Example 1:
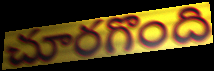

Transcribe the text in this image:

చూరగొంది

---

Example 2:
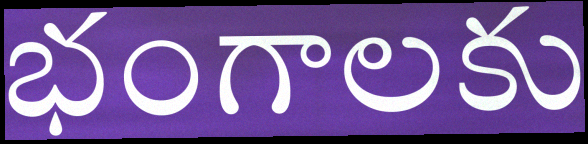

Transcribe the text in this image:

భంగాలకు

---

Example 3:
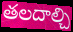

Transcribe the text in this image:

తలదాల్చి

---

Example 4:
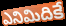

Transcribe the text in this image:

ఎనిమిదికే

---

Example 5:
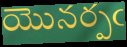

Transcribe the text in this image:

యొనర్పఁ